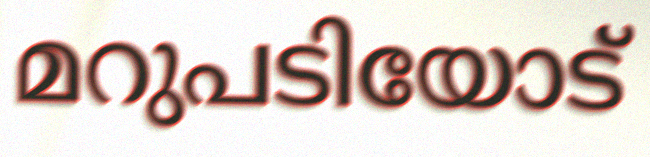
മറുപടിയോട്